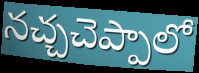
నచ్చచెప్పాలో